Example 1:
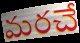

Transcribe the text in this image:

మరచే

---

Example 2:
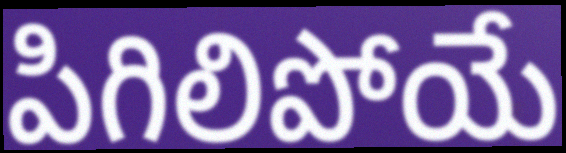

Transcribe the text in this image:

పిగిలిపోయే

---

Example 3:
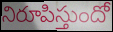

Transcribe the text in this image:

నిరూపిస్తుందో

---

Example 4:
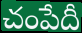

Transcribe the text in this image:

చంపేదీ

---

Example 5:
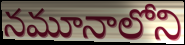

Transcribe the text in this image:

నమూనాలోని